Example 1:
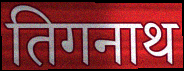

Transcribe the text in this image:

तिगनाथ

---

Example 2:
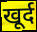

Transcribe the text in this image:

खूर्द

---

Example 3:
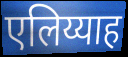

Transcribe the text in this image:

एलिय्याह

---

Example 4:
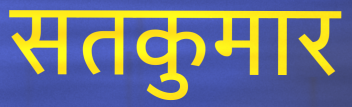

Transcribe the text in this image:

सतकुमार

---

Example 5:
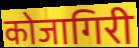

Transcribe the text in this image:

कोजागिरी